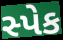
સ્પેક